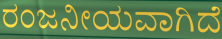
ರಂಜನೀಯವಾಗಿದೆ